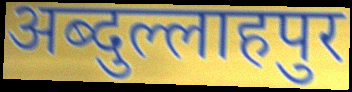
अब्दुल्लाहपुर